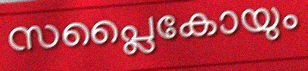
സപ്ലൈകോയും